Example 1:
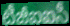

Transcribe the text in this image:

టీజీఐఐసీ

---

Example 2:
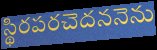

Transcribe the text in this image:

స్థిరపరచెదననెను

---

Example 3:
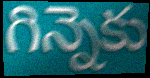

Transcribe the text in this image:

గిన్నెకు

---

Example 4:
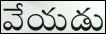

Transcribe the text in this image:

వేయడు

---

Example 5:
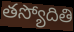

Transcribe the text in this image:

తస్యోదితి